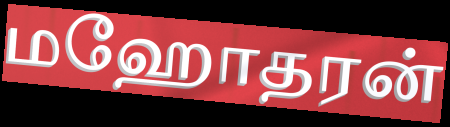
மஹோதரன்